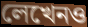
লেখেনও